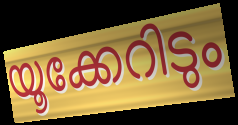
യൂക്കേറിടും